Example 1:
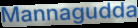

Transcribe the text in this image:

Mannagudda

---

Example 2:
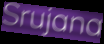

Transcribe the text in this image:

Srujana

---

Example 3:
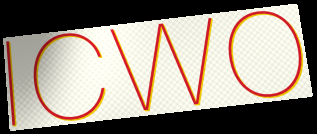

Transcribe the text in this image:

ICWO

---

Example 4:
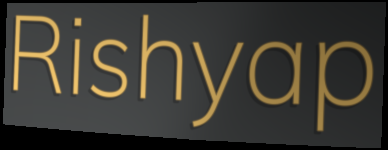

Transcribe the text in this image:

Rishyap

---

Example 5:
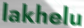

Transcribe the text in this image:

lakhelu